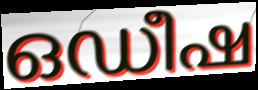
ഒഡീഷ